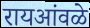
रायआंवळे